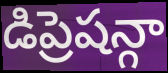
డిప్రెషన్గా